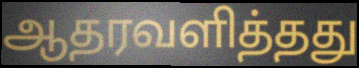
ஆதரவளித்தது